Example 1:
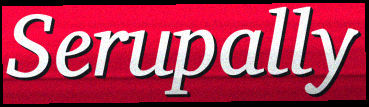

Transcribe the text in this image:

Serupally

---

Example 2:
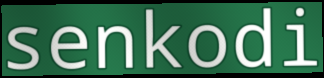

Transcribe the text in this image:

senkodi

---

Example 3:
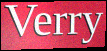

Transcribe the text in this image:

Verry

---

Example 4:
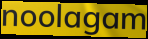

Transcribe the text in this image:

noolagam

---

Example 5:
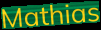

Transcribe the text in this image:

Mathias